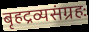
बृहद्रव्यसंग्रहः